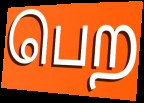
பெற